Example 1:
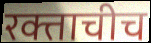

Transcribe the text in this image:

रक्ताचीच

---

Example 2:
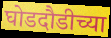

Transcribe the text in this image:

घोडदौडीच्या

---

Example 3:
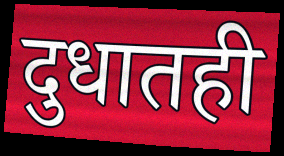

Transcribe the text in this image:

दुधातही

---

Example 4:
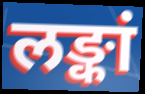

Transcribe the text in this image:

लङ्कां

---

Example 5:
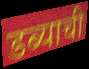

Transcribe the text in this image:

डब्याची